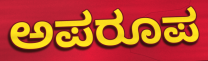
ಅಪರೂಪ